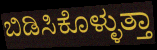
ಬಿಡಿಸಿಕೊಳ್ಳುತ್ತಾ